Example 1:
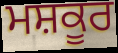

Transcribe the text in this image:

ਮਸ਼ਕੂਰ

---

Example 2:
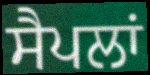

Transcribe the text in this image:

ਸੈਪਲਾਂ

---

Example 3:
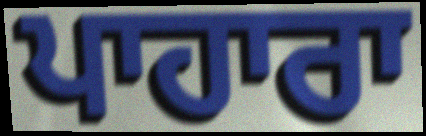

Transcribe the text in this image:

ਪਾਹਾਰਾ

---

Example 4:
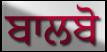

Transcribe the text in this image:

ਬਾਲਬੋ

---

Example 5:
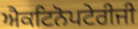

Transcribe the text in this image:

ਐਕਟਿਨੋਪਟੇਰੀਜੀ